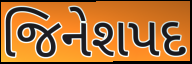
જિનેશપદ